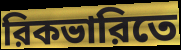
রিকভারিতে